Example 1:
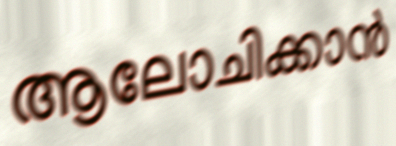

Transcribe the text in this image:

ആലോചിക്കാൻ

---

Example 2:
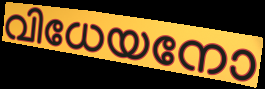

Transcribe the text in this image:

വിധേയനോ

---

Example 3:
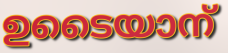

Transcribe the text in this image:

ഉടൈയാന്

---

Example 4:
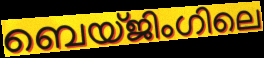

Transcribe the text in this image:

ബെയ്ജിംഗിലെ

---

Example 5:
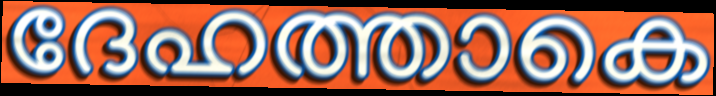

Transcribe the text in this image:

ദേഹത്താകെ